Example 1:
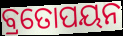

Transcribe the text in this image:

ବ୍ରତୋପୟନ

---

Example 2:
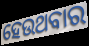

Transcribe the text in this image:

ହେଉଥବାର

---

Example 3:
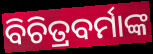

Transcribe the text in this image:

ବିଚିତ୍ରବର୍ମାଙ୍କ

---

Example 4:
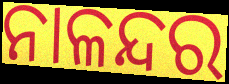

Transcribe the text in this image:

ନାଳନ୍ଦର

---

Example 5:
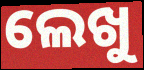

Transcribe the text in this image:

ଲେଖୁ